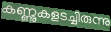
കണ്ണുകളടച്ചിരുന്നു